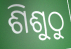
ଶିଶୁଠୁ